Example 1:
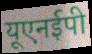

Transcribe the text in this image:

यूएनईपी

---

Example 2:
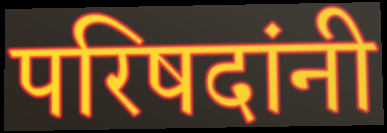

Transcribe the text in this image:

परिषदांनी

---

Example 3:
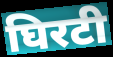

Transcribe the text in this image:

घिरटी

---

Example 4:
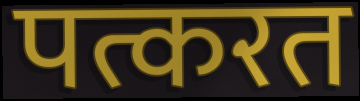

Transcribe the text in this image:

पत्करत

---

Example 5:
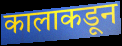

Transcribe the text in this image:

कालाकडून